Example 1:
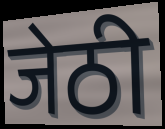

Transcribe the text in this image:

जेठी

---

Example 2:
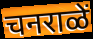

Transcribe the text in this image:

चनराळें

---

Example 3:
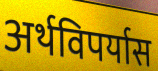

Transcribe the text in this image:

अर्थविपर्यास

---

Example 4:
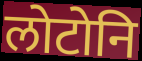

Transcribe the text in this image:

लोटोनि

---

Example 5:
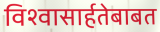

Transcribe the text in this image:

विश्वासार्हतेबाबत